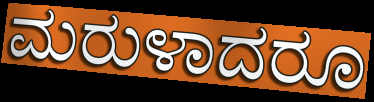
ಮರುಳಾದರೂ